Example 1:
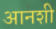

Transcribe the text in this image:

आनशी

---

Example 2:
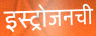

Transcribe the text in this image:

इस्ट्रोजनची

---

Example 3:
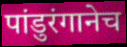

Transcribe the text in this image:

पांडुरंगानेच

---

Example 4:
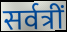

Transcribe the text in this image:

सर्वत्रीं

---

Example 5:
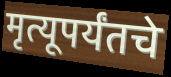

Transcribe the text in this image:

मृत्यूपर्यंतचे